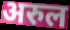
अरुल